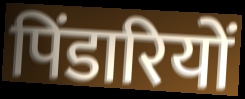
पिंडारियों